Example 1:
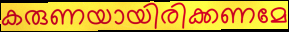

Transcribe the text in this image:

കരുണയായിരിക്കണമേ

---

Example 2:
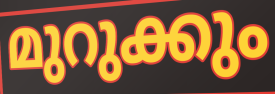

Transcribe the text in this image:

മുറുക്കും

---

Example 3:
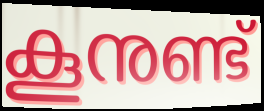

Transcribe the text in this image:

കൂനുണ്ട്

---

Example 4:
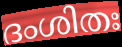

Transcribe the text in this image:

ദംശിതഃ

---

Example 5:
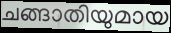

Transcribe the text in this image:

ചങ്ങാതിയുമായ